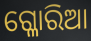
ଗ୍ଳୋରିଆ